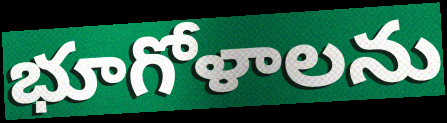
భూగోళాలను